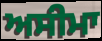
ਅਸੀਮਾ